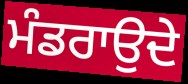
ਮੰਡਰਾਉਦੇ